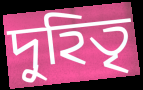
দুহিতৃ